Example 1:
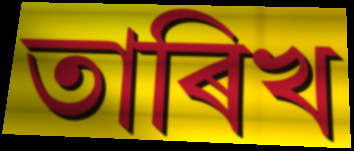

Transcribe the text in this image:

তাৰিখ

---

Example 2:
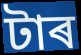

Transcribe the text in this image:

টাৰ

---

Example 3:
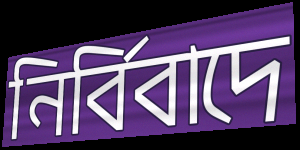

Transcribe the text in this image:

নিৰ্বিবাদে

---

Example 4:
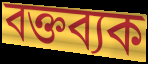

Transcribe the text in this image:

বক্তব্যক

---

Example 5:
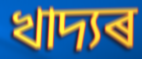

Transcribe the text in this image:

খাদ্যৰ